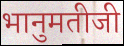
भानुमतीजी